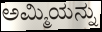
ಅಮ್ಮಿಯನ್ನು